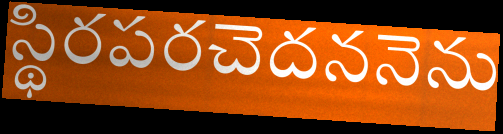
స్థిరపరచెదననెను